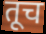
तूच